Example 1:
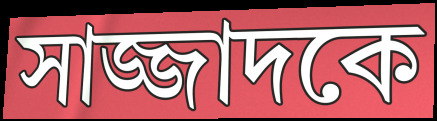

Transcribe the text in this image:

সাজ্জাদকে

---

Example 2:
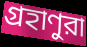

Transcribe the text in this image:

গ্রহাণুরা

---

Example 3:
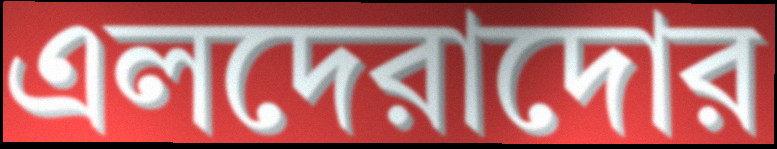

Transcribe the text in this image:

এলদেরাদোর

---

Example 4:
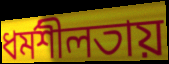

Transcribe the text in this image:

ধর্মশীলতায়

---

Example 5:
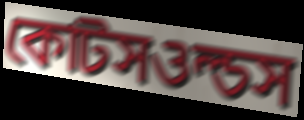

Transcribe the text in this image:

কোটসওল্ডস